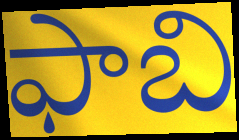
ఫాబి